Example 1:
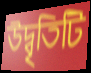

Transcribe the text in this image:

উদ্বৃতিটি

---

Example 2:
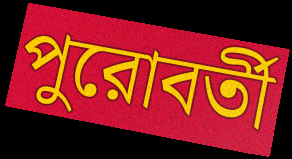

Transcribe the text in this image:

পুরোবর্তী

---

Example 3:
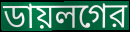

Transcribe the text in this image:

ডায়লগের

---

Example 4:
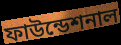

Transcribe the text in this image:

ফাউন্ডেশনাল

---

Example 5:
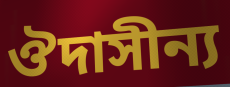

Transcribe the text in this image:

ঔদাসীন্য